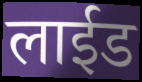
लाईड